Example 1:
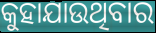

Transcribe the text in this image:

କୁହାଯାଉଥିବାର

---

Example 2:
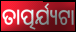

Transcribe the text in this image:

ତାତ୍ପର୍ଯ୍ୟଟା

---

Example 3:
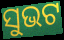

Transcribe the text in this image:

ସୁଭଟ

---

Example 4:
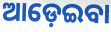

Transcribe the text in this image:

ଆଡ଼େଇବା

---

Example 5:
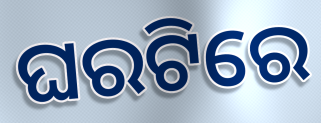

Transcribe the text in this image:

ଘରଟିରେ